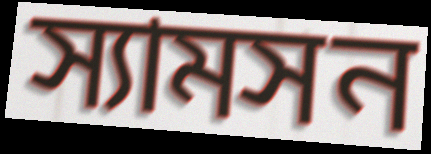
স্যামসন